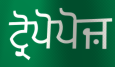
ਟ੍ਰੋਪੋਪੋਜ਼